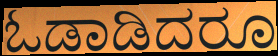
ಓಡಾಡಿದರೂ